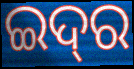
ଇଦ୍‍ର